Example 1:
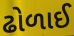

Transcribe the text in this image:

ઢોળાઈ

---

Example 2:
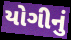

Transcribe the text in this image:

યોગીનું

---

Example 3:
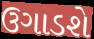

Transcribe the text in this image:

ઉગાડશે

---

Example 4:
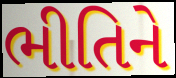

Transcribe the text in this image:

ભીતિને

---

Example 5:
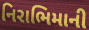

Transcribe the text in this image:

નિરાભિમાની